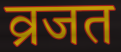
व्रजत